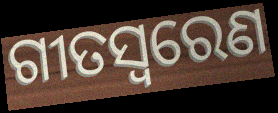
ଗୀତସ୍ବରେଣ